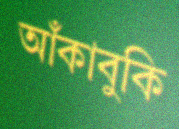
আঁকাবুকি